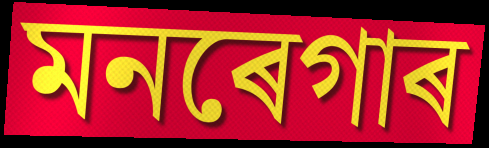
মনৰেগাৰ